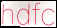
hdfc